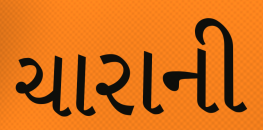
ચારાની